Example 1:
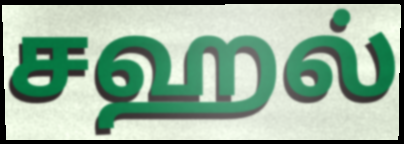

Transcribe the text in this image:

சஹல்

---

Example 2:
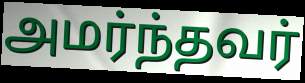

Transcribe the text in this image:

அமர்ந்தவர்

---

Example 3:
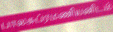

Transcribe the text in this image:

பாலசுப்ரமணியனிடம்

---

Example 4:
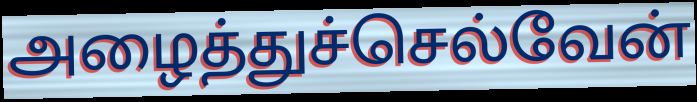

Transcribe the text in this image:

அழைத்துச்செல்வேன்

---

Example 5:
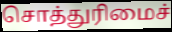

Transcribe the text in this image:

சொத்துரிமைச்